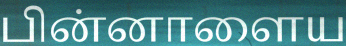
பின்னாளைய